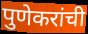
पुणेकरांची